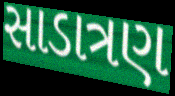
સાડાત્રણ